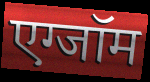
एग्जॉम